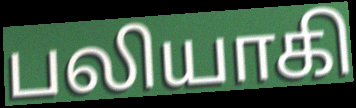
பலியாகி